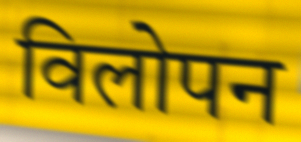
विलोपन